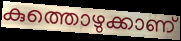
കുത്തൊഴുക്കാണ്